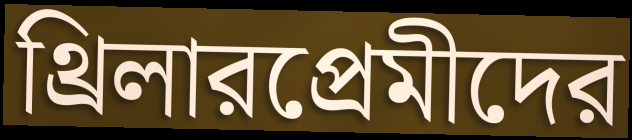
থ্রিলারপ্রেমীদের